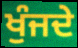
ਖੁੰਜਦੇ